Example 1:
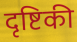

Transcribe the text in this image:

दृष्टिकी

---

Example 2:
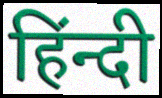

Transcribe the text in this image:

हिंन्दी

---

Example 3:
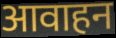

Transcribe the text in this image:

आवाहन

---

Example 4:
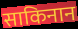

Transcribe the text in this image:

साकिनान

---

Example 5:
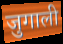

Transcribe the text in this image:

जुगाली